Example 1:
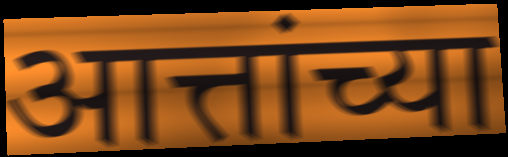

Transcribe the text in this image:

आत्तांच्या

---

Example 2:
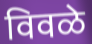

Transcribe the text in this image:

विवळे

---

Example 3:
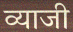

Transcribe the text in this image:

व्याजी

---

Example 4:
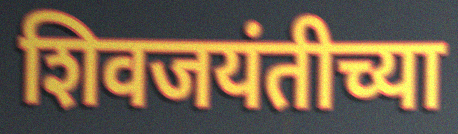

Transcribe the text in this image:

शिवजयंतीच्या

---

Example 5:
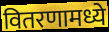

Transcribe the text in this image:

वितरणामध्ये